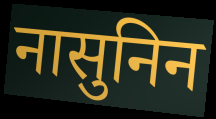
नासुनिन